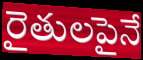
రైతులపైనే